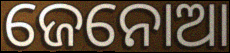
ଜେନୋଆ